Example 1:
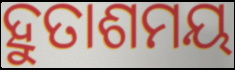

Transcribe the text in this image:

ହୁତାଶମୟ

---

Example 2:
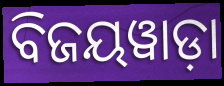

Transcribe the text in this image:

ବିଜୟୱାଡ଼ା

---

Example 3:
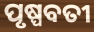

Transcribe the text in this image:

ପୃଷ୍ପବତୀ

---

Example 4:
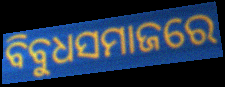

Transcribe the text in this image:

ବିବୁଧସମାଜରେ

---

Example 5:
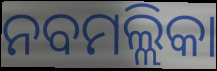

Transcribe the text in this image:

ନବମଲ୍ଲିକା